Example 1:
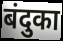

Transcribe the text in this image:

बंदुका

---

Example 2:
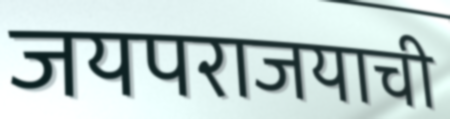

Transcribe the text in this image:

जयपराजयाची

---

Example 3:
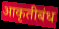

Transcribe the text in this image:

आकृतीबंध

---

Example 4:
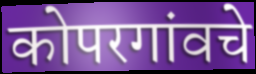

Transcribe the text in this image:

कोपरगांवचे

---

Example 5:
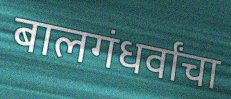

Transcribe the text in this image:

बालगंधर्वांचा